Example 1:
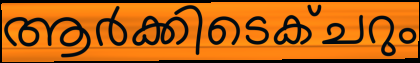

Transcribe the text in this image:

ആർക്കിടെക്ചറും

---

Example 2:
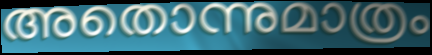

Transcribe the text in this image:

അതൊന്നുമാത്രം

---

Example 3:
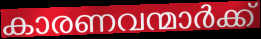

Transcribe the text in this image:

കാരണവന്മാർക്ക്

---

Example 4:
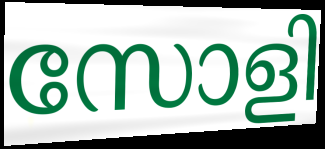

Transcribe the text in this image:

സോളി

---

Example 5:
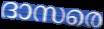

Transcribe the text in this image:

ദാസരെ